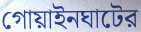
গোয়াইনঘাটের